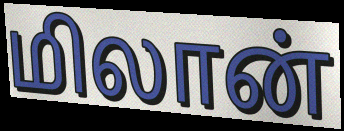
மிலான்